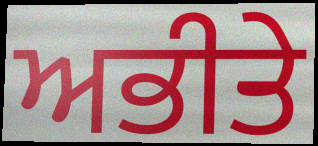
ਅਭੀਤੇ